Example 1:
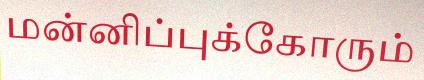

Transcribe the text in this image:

மன்னிப்புக்கோரும்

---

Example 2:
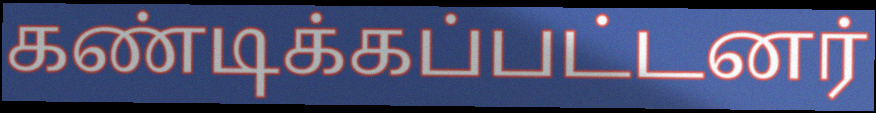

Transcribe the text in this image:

கண்டிக்கப்பட்டனர்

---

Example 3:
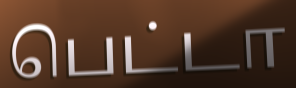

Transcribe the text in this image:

பெட்டா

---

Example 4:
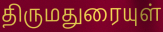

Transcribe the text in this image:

திருமதுரையுள்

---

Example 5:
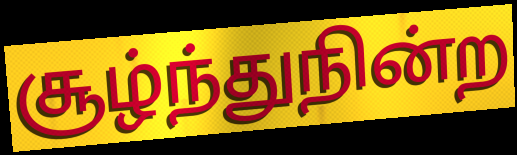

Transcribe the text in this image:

சூழ்ந்துநின்ற